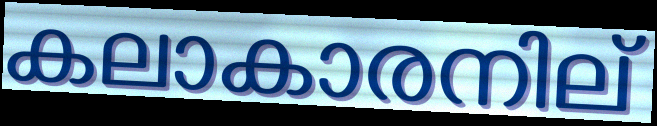
കലാകാരനില്